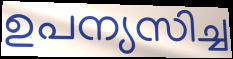
ഉപന്യസിച്ച